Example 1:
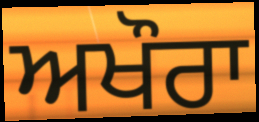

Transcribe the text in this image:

ਅਖੌਰਾ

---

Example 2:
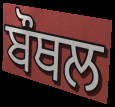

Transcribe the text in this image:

ਬੌਥਲ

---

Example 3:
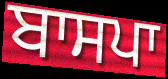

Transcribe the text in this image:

ਬਾਸਪਾ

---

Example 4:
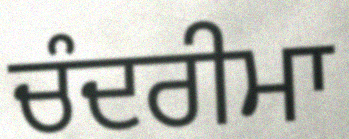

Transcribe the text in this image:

ਚੰਦਰੀਮਾ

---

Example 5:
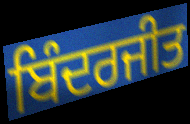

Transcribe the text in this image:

ਬਿੰਦਰਜੀਤ